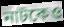
নাটকেও